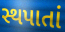
સ્થપાતાં